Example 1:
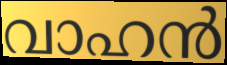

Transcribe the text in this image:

വാഹൻ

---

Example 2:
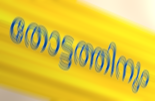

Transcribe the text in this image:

തോട്ടത്തിനും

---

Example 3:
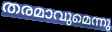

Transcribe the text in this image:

തരമാവുമെന്നു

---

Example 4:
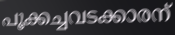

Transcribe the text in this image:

പൂക്കച്ചവടക്കാരന്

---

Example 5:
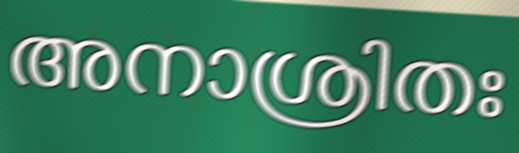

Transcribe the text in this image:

അനാശ്രിതഃ